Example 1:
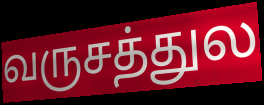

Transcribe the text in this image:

வருசத்துல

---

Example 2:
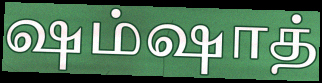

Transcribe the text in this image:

ஷம்ஷாத்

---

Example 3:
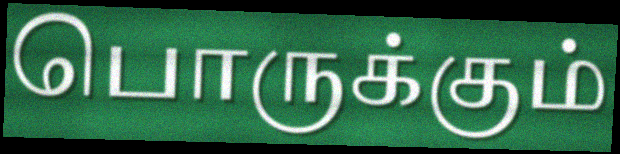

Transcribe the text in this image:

பொருக்கும்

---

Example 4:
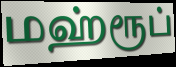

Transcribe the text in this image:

மஹ்ரூப்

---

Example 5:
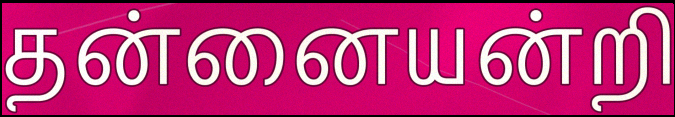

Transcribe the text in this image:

தன்னையன்றி